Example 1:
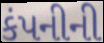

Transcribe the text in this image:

કંપનીની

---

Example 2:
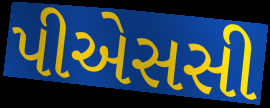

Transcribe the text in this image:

પીએસસી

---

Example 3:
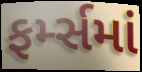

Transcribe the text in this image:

ફર્મ્સમાં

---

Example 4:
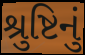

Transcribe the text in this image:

શ્રુષ્ટિનું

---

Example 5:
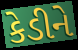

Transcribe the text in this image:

કેડીને